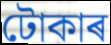
টোকাৰ